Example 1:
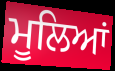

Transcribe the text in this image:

ਮੂਲਿਆਂ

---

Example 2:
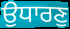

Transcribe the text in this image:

ਉਧਾਰਣੁ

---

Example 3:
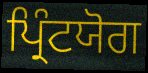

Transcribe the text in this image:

ਪ੍ਰਿੰਟਯੋਗ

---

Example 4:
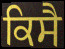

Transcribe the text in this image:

ਕਿਸੈ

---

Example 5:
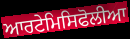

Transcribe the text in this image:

ਆਰਟੇਮਿਸਿਫੋਲੀਆ